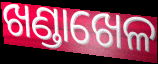
ଖଣ୍ଡାଖେଳ